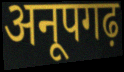
अनूपगढ़